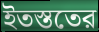
ইতস্ততের